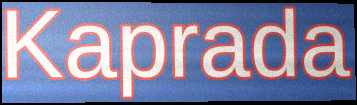
Kaprada